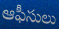
ఆఫీసులు